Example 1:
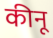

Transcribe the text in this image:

कीनू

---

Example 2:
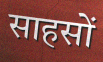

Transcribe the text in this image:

साहसों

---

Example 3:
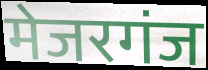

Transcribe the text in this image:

मेजरगंज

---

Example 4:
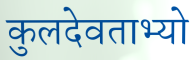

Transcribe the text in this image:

कुलदेवताभ्यो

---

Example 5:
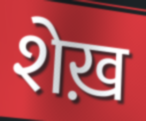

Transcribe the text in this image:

शेख़